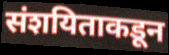
संशयिताकडून